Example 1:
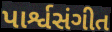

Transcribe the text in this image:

પાર્શ્વસંગીત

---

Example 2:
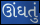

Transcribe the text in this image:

ઊંઘતું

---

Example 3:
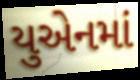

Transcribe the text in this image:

યુએનમાં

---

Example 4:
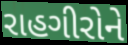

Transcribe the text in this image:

રાહગીરોને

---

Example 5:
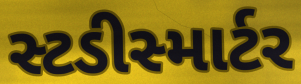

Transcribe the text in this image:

સ્ટડીસ્માર્ટર